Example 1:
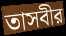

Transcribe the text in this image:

তাসবীর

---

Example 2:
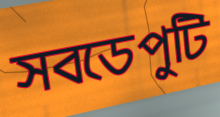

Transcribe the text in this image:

সবডেপুটি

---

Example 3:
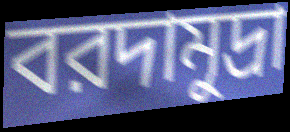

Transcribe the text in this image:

বরদামুদ্রা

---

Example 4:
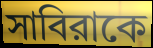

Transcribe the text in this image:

সাবিরাকে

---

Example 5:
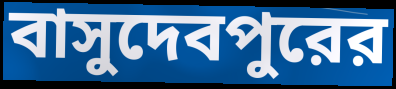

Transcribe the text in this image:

বাসুদেবপুরের